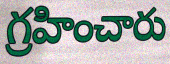
గ్రహించారు